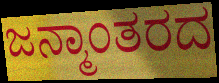
ಜನ್ಮಾಂತರದ